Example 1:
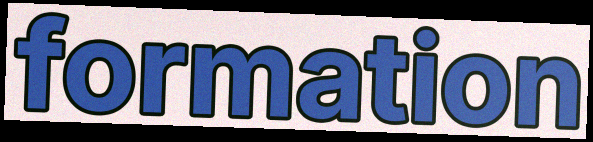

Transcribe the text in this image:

formation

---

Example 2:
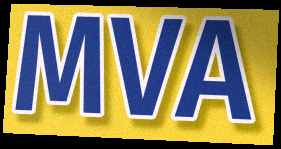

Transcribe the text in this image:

MVA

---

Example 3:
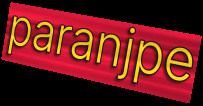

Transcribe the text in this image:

paranjpe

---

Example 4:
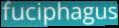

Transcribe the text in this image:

fuciphagus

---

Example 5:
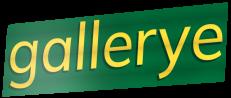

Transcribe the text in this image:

gallerye